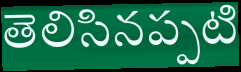
తెలిసినప్పటి